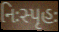
નિઃસ્પૃહઃ